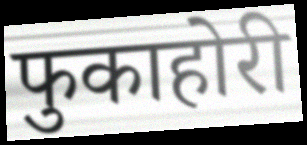
फुकाहोरी